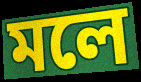
মলে